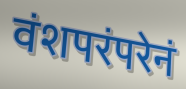
वंशपरंपरेनं